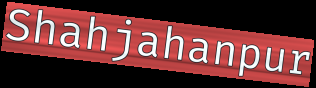
Shahjahanpur